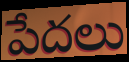
పేదలు